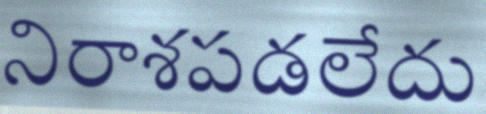
నిరాశపడలేదు